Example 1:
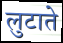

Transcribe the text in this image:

लुटाते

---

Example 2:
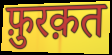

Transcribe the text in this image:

फ़ुरक़त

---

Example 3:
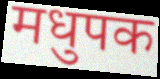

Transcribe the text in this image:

मधुपक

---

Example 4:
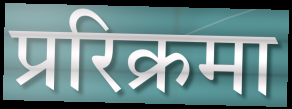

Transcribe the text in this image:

प्ररिक्रमा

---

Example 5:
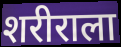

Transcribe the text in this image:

शरीराला